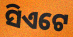
ସିଏଟେ